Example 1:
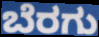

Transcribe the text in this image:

ಬೆರಗು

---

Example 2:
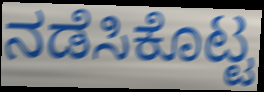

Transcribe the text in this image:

ನಡೆಸಿಕೊಟ್ಟ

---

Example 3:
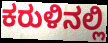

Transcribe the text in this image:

ಕರುಳಿನಲ್ಲಿ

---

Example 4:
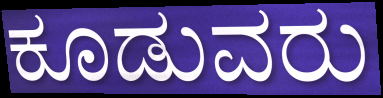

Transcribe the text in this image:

ಕೂಡುವರು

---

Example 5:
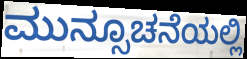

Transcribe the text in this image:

ಮುನ್ಸೂಚನೆಯಲ್ಲಿ